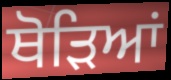
ਥੋੜਿਆਂ